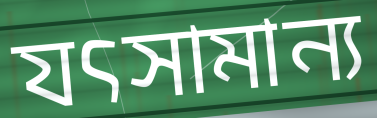
যৎসামান্য